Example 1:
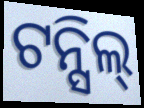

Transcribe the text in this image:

ଟନ୍ସିଲ୍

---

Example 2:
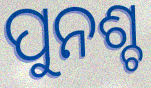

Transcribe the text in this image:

ପୁନଶ୍ଚ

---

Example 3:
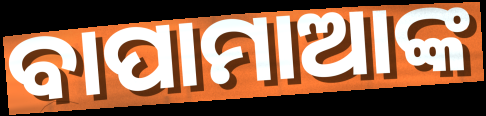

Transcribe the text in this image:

ବାପାମାଆଙ୍କ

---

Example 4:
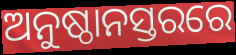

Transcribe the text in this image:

ଅନୁଷ୍ଠାନସ୍ତରରେ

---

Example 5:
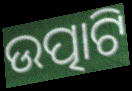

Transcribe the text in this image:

ଉତ୍ପାଟି